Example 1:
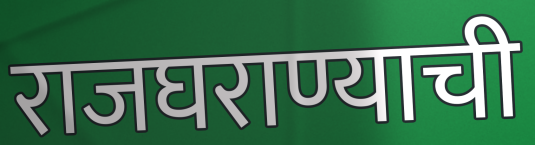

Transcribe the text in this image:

राजघराण्याची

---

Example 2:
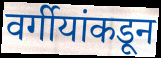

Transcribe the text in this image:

वर्गीयांकडून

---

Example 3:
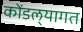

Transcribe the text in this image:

कोंडल्यागत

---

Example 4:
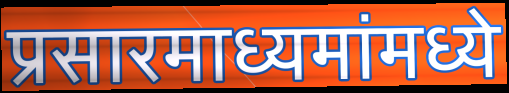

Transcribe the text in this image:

प्रसारमाध्यमांमध्ये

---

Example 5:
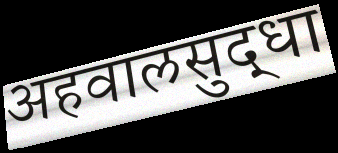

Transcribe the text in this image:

अहवालसुद्धा